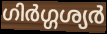
ഗിർഗ്ഗശ്യർ